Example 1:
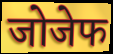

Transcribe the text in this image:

जोजेफ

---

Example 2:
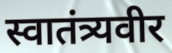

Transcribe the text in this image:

स्वातंत्र्यवीर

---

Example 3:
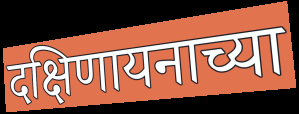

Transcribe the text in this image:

दक्षिणायनाच्या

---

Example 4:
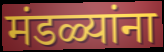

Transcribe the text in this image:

मंडळ्यांना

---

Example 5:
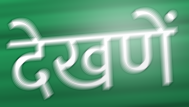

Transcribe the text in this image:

देखणें